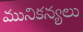
మునికన్యలు